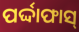
ପର୍ଦ୍ଦାଫାସ୍